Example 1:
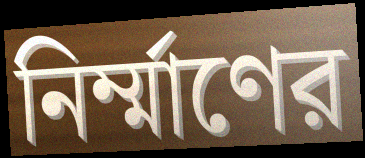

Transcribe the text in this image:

নির্ম্মাণের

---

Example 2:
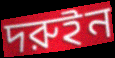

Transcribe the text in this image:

দরুইন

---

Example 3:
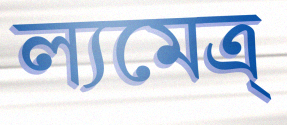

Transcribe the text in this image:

ল্যমেত্র্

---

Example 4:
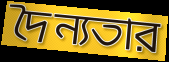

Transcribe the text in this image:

দৈন্যতার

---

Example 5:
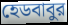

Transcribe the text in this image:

হেডবাবুর